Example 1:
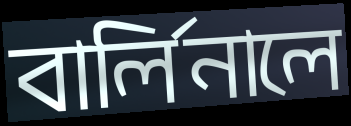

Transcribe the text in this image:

বার্লিনালে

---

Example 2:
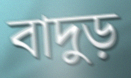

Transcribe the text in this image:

বাদুড়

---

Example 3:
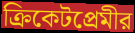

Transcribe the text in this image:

ক্রিকেটপ্রেমীর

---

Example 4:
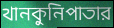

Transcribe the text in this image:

থানকুনিপাতার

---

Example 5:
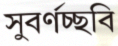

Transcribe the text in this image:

সুবর্ণচ্ছবি